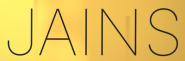
JAINS